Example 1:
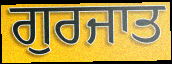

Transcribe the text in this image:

ਗੁਰਜਾਤ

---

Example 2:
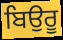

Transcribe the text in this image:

ਬਿਉਰੂ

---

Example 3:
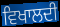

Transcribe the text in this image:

ਵਿਖਾਲਦੀ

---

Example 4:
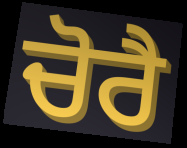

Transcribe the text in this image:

ਚੋਰੈ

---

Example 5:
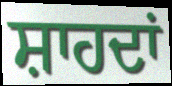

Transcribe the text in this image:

ਸ਼ਾਹਦਾਂ